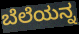
ಬೆಲೆಯನ್ನ